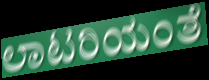
ಲಾಟರಿಯಂತೆ